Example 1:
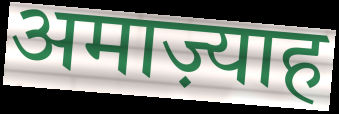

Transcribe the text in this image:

अमाज़्याह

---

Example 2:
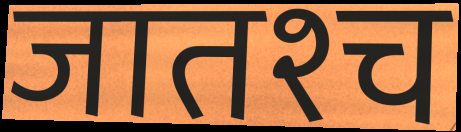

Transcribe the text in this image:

जातश्च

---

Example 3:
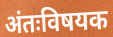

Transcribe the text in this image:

अंतःविषयक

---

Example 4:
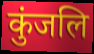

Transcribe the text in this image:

कुंजलि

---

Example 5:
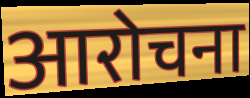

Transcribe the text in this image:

आरोचना